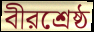
বীরশ্রেষ্ঠ